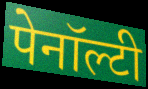
पेनॉल्टी